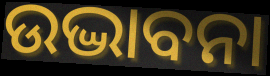
ଉଦ୍ଭାବନା